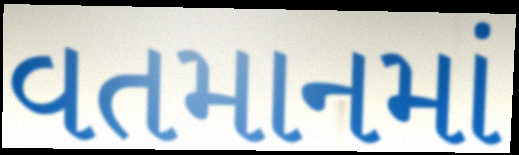
વતમાનમાં